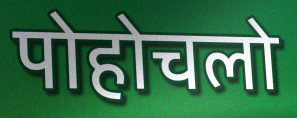
पोहोचलो